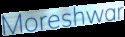
Moreshwar